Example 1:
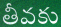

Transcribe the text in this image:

తీవకు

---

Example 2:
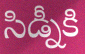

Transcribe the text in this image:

సిడ్నీకి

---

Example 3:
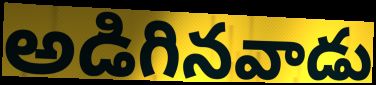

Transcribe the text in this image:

అడిగినవాడు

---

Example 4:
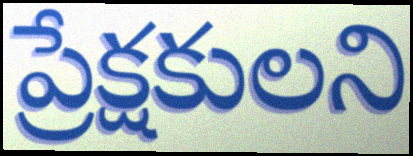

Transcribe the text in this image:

ప్రేక్షకులని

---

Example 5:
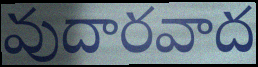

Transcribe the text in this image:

వుదారవాద